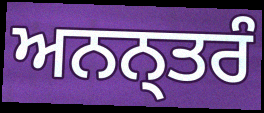
ਅਨਨ੍ਤਰੰ